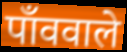
पाँववाले